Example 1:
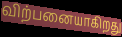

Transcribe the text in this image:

விற்பனையாகிறது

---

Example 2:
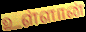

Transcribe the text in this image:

உள்ளான்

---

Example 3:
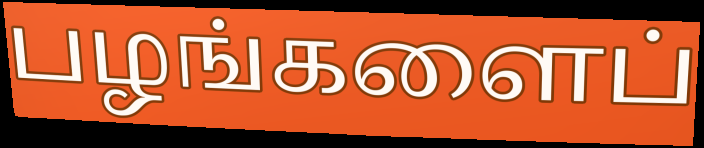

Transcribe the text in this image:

பழங்களைப்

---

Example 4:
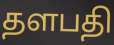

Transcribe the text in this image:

தளபதி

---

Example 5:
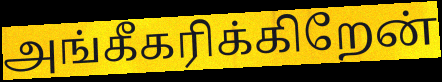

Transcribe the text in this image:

அங்கீகரிக்கிறேன்